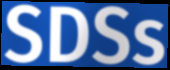
SDSs